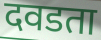
दवडता